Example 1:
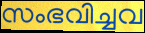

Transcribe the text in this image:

സംഭവിച്ചവ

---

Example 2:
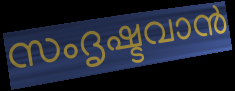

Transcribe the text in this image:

സംദൃഷ്ടവാൻ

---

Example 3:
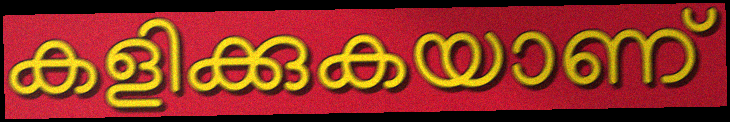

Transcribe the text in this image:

കളിക്കുകയാണ്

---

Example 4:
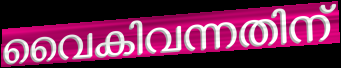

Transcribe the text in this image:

വൈകിവന്നതിന്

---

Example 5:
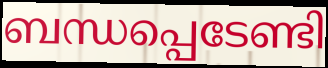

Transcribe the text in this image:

ബന്ധപ്പെടേണ്ടി